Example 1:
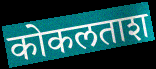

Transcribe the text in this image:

कोकलताश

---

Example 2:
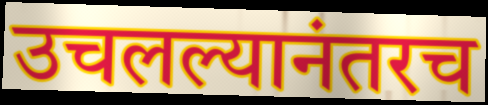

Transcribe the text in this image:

उचलल्यानंतरच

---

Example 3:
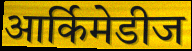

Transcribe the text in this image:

आर्किमेडीज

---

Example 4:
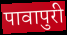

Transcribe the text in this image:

पावापुरी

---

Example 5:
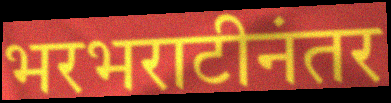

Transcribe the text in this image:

भरभराटीनंतर